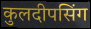
कुलदीपसिंग